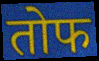
तोफ